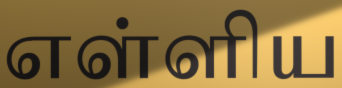
எள்ளிய